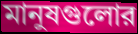
মানুষগুলোর